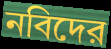
নবিদের